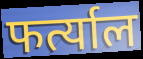
फर्त्याल